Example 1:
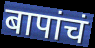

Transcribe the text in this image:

बापांचं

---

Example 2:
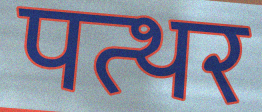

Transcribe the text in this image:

पत्थर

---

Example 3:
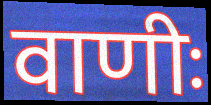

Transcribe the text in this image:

वाणीः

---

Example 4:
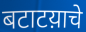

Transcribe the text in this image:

बटाटय़ाचे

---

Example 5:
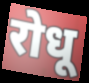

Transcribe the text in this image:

रोधू